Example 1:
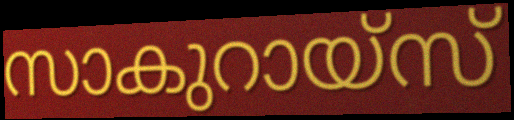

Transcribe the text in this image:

സാകുറായ്സ്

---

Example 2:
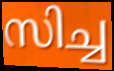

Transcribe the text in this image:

സിച്ച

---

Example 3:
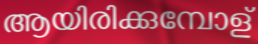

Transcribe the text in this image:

ആയിരിക്കുമ്പോള്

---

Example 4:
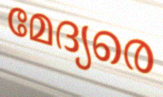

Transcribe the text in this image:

മേദ്യരെ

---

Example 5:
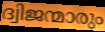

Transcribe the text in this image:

ദ്വിജന്മാരും